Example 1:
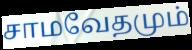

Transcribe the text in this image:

சாமவேதமும்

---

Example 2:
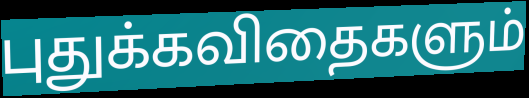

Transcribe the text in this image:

புதுக்கவிதைகளும்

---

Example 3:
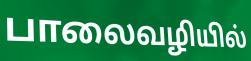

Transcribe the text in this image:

பாலைவழியில்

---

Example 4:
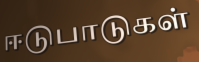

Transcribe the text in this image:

ஈடுபாடுகள்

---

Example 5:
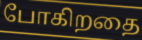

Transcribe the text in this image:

போகிறதை